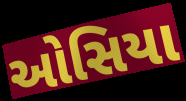
ઓસિયા